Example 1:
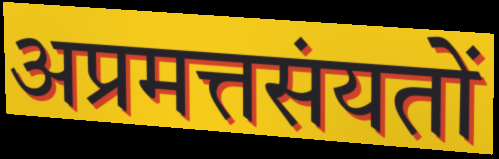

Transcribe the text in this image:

अप्रमत्तसंयतों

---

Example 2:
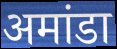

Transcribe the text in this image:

अमांडा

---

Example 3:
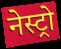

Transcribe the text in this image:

नेस्ट्रो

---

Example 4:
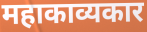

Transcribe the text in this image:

महाकाव्यकार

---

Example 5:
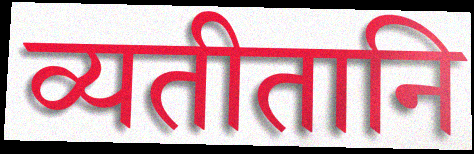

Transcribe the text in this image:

व्यतीतानि